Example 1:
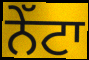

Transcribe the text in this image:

ਨੇੱਟਾ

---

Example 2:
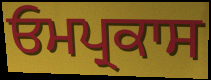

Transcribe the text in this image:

ਓਮਪ੍ਰਕਾਸ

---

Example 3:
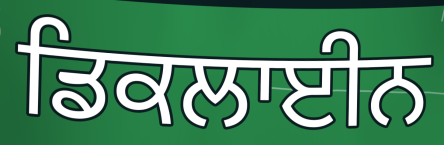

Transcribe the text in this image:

ਡਿਕਲਾਈਨ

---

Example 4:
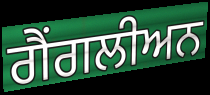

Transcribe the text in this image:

ਗੈਂਗਲੀਅਨ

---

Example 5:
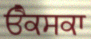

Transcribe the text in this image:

ਓੈਕਸਕਾ